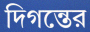
দিগন্তের